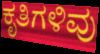
ಕೃತಿಗಳಿವು